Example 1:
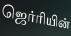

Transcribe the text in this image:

ஜெர்ரியின்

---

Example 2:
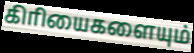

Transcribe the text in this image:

கிரியைகளையும்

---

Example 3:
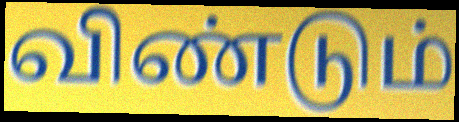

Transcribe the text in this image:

விண்டும்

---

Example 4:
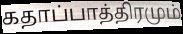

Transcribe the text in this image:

கதாப்பாத்திரமும்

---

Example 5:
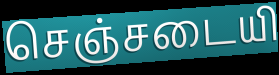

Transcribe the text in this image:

செஞ்சடையி